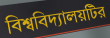
বিশ্ববিদ্যালয়টির